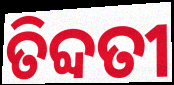
ତିବ୍ଦତୀ